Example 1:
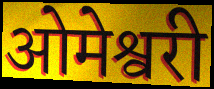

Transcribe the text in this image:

ओमेश्वरी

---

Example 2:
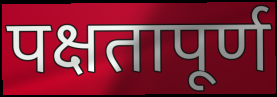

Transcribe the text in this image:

पक्षतापूर्ण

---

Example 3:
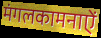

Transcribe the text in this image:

मंगलकामनाऐं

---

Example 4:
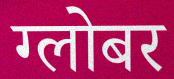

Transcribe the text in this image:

ग्लोबर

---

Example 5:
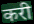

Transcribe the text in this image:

करी